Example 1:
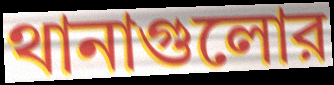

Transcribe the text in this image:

থানাগুলোর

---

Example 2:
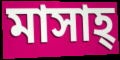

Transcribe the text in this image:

মাসাহ্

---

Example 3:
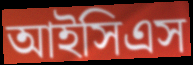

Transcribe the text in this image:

আইসিএস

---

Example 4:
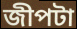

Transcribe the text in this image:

জীপটা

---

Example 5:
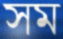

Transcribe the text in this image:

সম